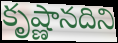
కృష్ణానదిని